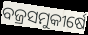
ବଜ୍ରସମୁକୀର୍ଷେ